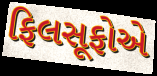
ફિલસૂફોએ